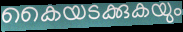
കൈയടക്കുകയും